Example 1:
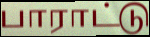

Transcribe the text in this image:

பாராட்டு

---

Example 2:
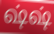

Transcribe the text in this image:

ஷ்ஷ்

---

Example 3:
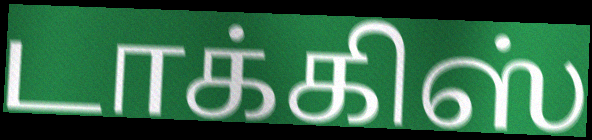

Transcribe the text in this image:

டாக்கிஸ்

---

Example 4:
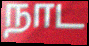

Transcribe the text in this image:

நாட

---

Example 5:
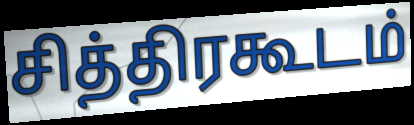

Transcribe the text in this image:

சித்திரகூடம்